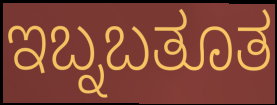
ಇಬ್ನಬತೂತ